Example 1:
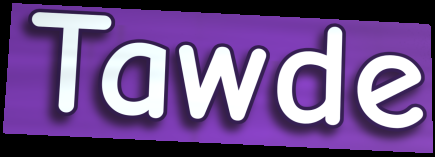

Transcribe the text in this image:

Tawde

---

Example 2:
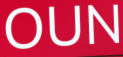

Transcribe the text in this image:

OUN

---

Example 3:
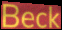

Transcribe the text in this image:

Beck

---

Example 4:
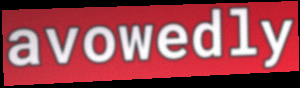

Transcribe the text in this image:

avowedly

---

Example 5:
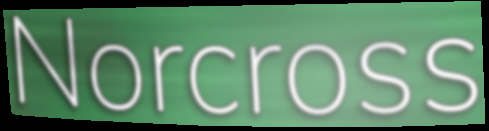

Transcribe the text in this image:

Norcross